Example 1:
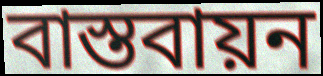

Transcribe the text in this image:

বাস্তবায়ন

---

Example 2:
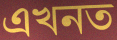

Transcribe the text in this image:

এখনত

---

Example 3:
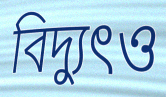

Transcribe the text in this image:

বিদ্যুৎও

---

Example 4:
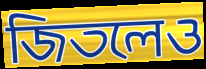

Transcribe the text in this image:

জিতলেও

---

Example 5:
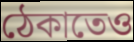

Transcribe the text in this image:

ঠেকাতেও